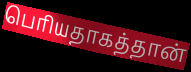
பெரியதாகத்தான்